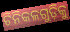
ଚିନିକଳଗୁଡ଼ିକୁ